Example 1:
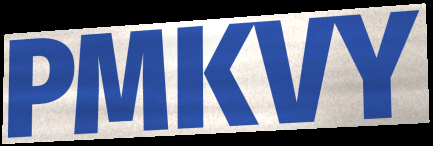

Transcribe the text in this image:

PMKVY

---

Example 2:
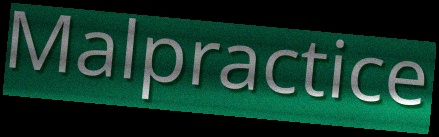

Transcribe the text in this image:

Malpractice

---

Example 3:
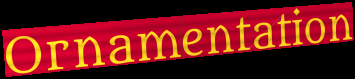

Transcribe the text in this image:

Ornamentation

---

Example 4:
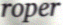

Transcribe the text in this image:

roper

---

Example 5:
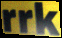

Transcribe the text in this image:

rrk